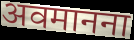
अवमानना